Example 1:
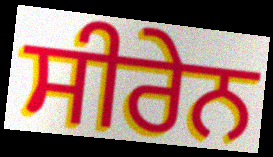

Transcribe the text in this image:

ਸੀਰੇਨ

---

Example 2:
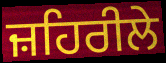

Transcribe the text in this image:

ਜ਼ਹਿਰੀਲੇ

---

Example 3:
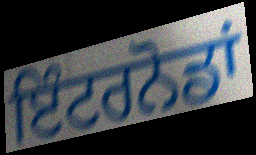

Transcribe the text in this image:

ਇੰਟਰਨੋਡਾਂ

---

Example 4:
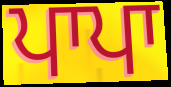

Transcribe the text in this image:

ਪਾਪਾ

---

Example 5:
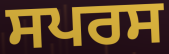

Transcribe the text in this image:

ਸਪਰਸ